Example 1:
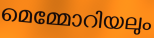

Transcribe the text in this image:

മെമ്മോറിയലും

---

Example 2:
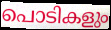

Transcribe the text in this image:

പൊടികളും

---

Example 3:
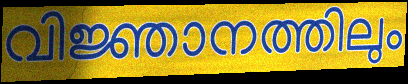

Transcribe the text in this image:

വിജ്ഞാനത്തിലും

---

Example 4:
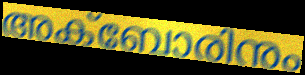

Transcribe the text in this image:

അക്ബോരിനും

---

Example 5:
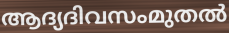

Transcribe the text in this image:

ആദ്യദിവസംമുതൽ